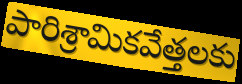
పారిశ్రామికవేత్తలకు